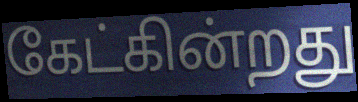
கேட்கின்றது